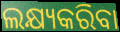
ଲକ୍ଷ୍ୟକରିବା